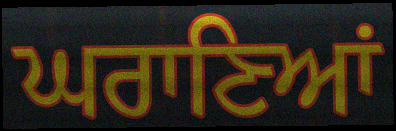
ਘਰਾਣਿਆਂ